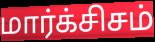
மார்க்சிசம்